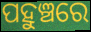
ପହୁଞ୍ଚରେ